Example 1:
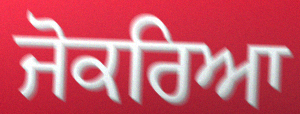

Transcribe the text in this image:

ਜੋਕਰਿਆ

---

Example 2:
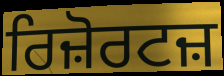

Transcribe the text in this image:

ਰਿਜ਼ੋਰਟਜ਼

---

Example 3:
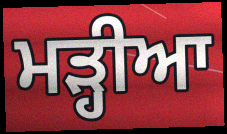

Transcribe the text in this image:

ਮੜ੍ਹੀਆ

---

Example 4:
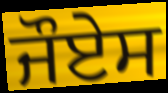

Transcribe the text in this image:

ਜੌਏਸ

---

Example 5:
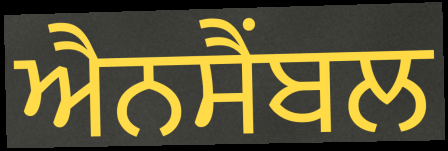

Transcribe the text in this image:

ਐਨਸੈਂਬਲ